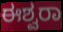
ಈಶ್ವರಾ